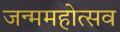
जन्ममहोत्सव